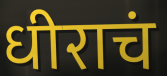
धीराचं